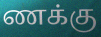
ணக்கு